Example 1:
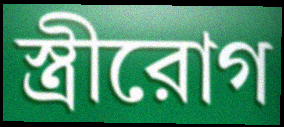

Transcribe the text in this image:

স্ত্রীরোগ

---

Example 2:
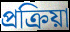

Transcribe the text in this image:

প্রক্রিয়া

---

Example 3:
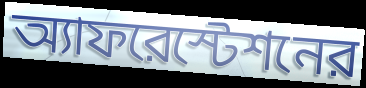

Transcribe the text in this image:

অ্যাফরেস্টেশনের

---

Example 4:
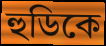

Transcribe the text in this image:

হুডিকে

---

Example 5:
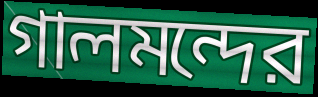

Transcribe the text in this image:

গালমন্দের